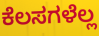
ಕೆಲಸಗಳೆಲ್ಲ